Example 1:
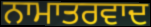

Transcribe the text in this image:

ਨਾਮਾਤਰਵਾਦ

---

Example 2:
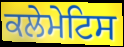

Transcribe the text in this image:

ਕਲੇਮੇਟਿਸ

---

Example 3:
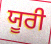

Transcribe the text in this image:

ਯੂਰੀ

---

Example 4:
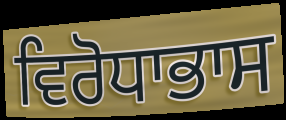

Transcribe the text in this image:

ਵਿਰੋਧਾਭਾਸ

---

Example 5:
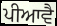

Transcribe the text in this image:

ਪੀਆਵੈ